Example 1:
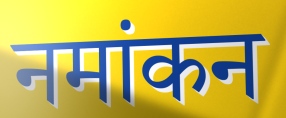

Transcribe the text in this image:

नमांकन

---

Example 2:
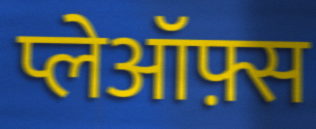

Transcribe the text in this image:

प्लेऑफ़्स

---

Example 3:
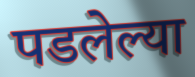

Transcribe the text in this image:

पडलेल्या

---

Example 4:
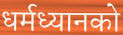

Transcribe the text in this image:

धर्मध्यानको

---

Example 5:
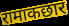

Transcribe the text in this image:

रामाकछार